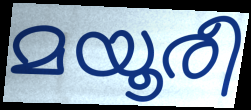
മയൂരീ